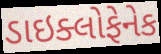
ડાઇક્લોફેનેક